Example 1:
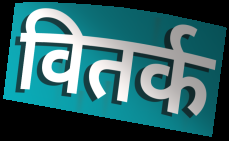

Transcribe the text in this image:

वितर्क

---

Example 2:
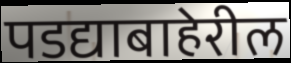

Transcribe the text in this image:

पडद्याबाहेरील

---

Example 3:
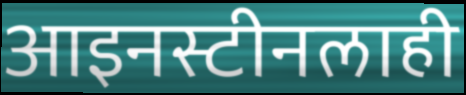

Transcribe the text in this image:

आइनस्टीनलाही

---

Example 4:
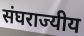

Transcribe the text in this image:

संघराज्यीय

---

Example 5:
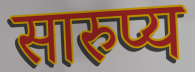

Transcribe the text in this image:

सारुप्य